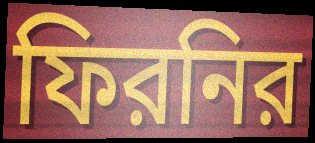
ফিরনির